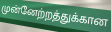
முன்னேற்றத்துக்கான